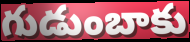
గుడుంబాకు